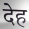
देह